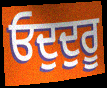
ਓਦੁਦੁਰੂ